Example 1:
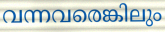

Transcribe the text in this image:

വന്നവരെങ്കിലും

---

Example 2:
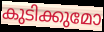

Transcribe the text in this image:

കുടിക്കുമോ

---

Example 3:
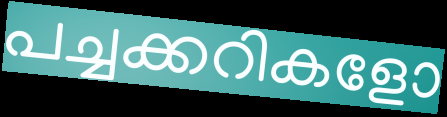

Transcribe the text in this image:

പച്ചക്കറികളോ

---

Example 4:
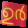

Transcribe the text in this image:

ഉർ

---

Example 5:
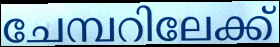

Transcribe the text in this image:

ചേമ്പറിലേക്ക്